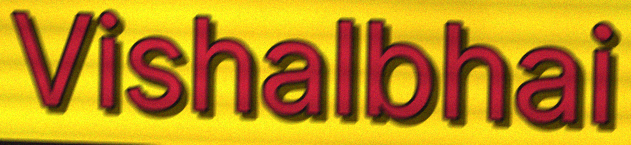
Vishalbhai